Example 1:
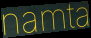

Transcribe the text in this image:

namta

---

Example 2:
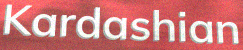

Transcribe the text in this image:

Kardashian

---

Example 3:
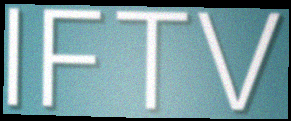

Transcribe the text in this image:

IFTV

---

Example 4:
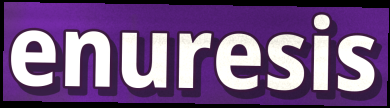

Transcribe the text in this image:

enuresis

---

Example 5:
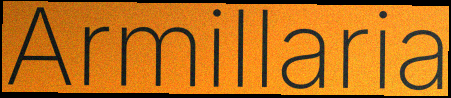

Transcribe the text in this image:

Armillaria